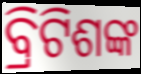
ବ୍ରିଟିଶଙ୍କ